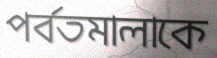
পর্বতমালাকে